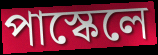
পাস্কেলে